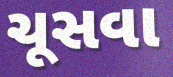
ચૂસવા